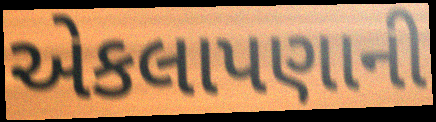
એકલાપણાની